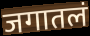
जगातलं